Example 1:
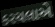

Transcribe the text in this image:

કરચલાએ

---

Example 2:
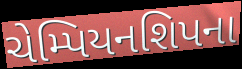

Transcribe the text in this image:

ચેમ્પિયનશિપના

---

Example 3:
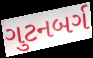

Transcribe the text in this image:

ગુટનબર્ગ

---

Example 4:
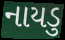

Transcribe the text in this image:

નાયડુ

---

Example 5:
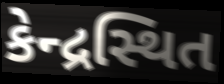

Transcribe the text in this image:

કેન્દ્રસ્થિત